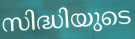
സിദ്ധിയുടെ